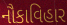
નૌકાવિહાર